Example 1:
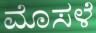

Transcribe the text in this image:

ಮೊಸಳೆ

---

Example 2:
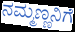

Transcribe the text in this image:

ನಮ್ಮಣ್ಣನಿಗೆ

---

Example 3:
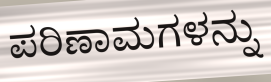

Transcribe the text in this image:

ಪರಿಣಾಮಗಳನ್ನು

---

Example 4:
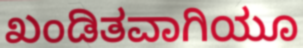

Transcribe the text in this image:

ಖಂಡಿತವಾಗಿಯೂ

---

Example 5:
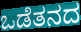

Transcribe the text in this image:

ಒಡೆತನದ